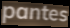
pantes